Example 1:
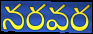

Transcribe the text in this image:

నరవర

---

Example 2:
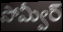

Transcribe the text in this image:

సోమ్వీర్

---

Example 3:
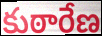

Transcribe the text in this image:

కుఠారేణ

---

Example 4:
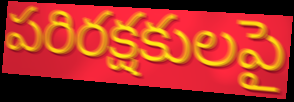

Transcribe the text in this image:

పరిరక్షకులపై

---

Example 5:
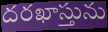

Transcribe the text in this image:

దరఖాస్తును